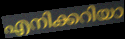
എനിക്കറിയാ